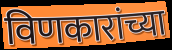
विणकारांच्या